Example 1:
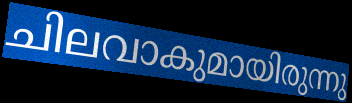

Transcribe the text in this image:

ചിലവാകുമായിരുന്നു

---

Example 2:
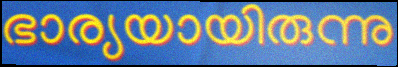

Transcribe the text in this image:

ഭാര്യയായിരുന്നു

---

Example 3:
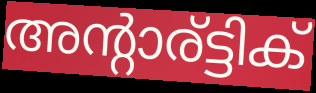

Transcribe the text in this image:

അന്റാര്ട്ടിക്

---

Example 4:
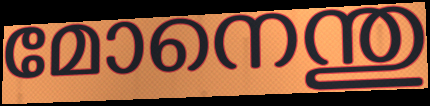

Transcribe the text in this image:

മോനെന്തു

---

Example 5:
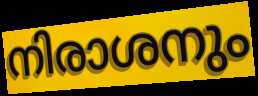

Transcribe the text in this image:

നിരാശനും